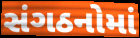
સંગઠનોમાં